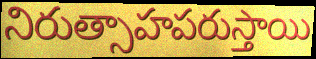
నిరుత్సాహపరుస్తాయి